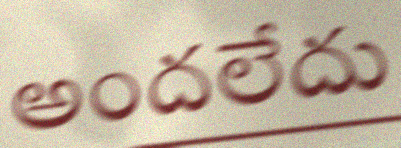
అందలేదు